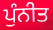
ਪੁੰਨੀਤ